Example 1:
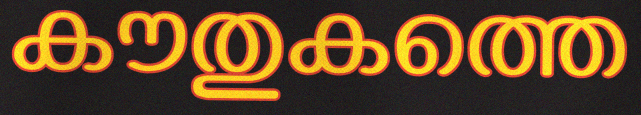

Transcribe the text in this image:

കൗതുകത്തെ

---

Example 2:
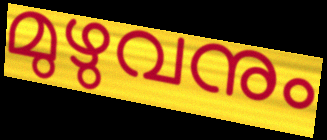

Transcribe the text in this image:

മുഴുവനും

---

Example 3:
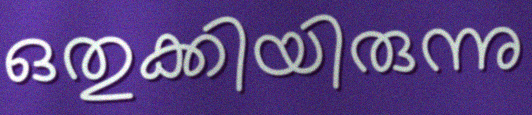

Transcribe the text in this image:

ഒതുക്കിയിരുന്നു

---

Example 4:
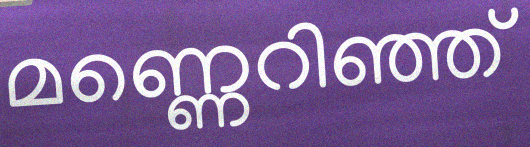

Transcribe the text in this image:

മണ്ണെറിഞ്ഞ്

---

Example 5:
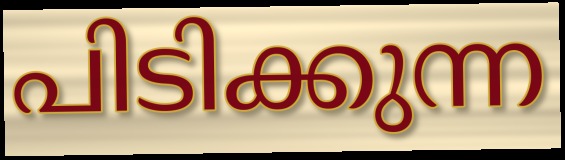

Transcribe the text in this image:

പിടിക്കുന്ന